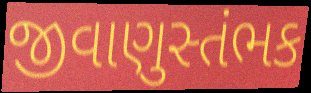
જીવાણુસ્તંભક